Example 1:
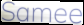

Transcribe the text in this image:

Samee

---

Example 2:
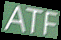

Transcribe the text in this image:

ATF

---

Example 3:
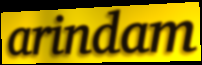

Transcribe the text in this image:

arindam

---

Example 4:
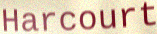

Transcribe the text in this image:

Harcourt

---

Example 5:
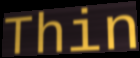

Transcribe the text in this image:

Thin